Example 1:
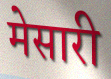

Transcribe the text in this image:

मेसारी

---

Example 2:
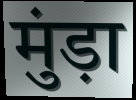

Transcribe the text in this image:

मुंड़ा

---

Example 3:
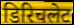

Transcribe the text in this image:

डिरिचलेट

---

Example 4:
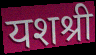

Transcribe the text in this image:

यशश्री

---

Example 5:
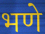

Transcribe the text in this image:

भणे